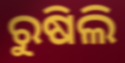
ରୁଷିଲି